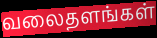
வலைதளங்கள்